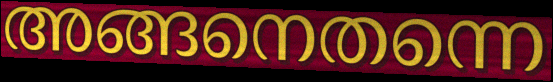
അങ്ങനെതന്നെ